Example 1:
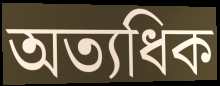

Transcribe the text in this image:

অত্যধিক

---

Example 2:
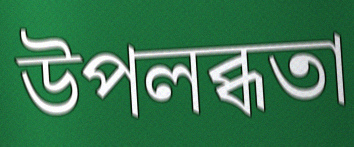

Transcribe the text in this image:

উপলব্ধতা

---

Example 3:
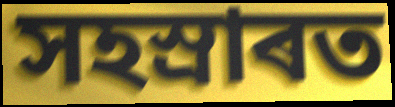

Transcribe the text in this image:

সহস্ৰাৰত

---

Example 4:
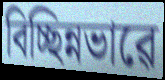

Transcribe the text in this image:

বিচ্ছিন্নভাৱে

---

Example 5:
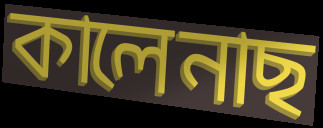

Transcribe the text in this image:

কালেনাছ